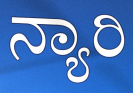
ನ್ಯಾರಿ